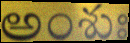
అంశుః